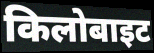
किलोबाइट